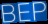
BEP